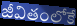
జీవితంలోకే